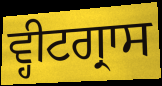
ਵ੍ਹੀਟਗ੍ਰਾਸ